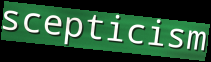
scepticism